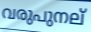
വരുപുനല്